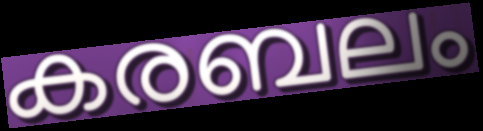
കരബലം